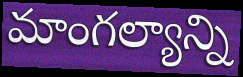
మాంగల్యాన్ని